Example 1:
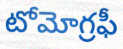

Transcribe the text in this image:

టోమోగ్రఫీ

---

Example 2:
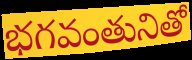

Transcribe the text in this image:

భగవంతునితో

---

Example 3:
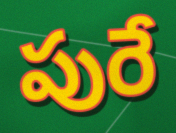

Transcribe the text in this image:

పురే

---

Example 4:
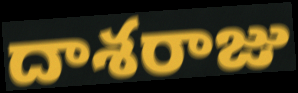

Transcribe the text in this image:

దాశరాజు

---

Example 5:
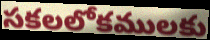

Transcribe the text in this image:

సకలలోకములకు